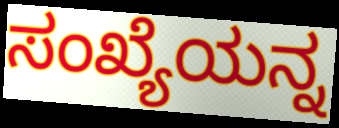
ಸಂಖ್ಯೆಯನ್ನ